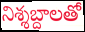
నిశ్శబ్దాలతో